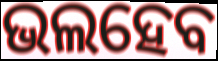
ଭଲହେବ